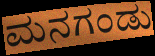
ಮನಗಂಡು